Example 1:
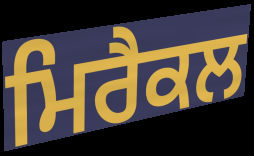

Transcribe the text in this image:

ਮਿਰੈਕਲ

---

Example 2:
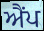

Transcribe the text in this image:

ਐਂਪ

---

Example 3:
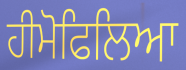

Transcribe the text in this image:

ਹੀਮੋਫਿਲਿਆ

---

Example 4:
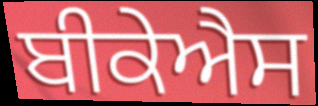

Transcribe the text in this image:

ਬੀਕੇਐਸ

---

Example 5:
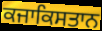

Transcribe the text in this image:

ਕਜਾਕਿਸਤਾਨ